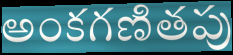
అంకగణితపు